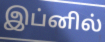
இப்னில்